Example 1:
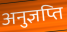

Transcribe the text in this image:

अनुज्ञप्ति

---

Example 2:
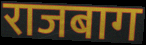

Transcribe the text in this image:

राजबाग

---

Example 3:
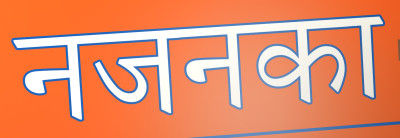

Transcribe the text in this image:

नजनका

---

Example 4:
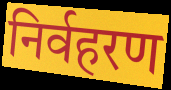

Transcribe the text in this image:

निर्वहरण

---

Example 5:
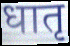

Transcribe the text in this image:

धातृ